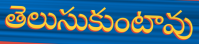
తెలుసుకుంటావు